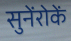
सुनेंरोकें